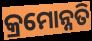
କ୍ରମୋନ୍ନତି